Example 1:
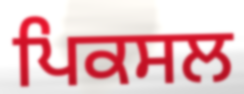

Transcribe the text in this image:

ਪਿਕਸਲ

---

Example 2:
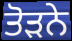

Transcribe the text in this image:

ਤੋੜਨੇ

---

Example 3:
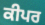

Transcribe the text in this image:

ਕੀਪਰ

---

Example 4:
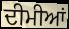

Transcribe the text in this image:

ਦੀਮੀਆਂ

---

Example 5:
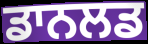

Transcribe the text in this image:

ਡਾਨਲਡ